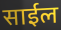
साईल